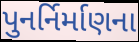
પુનર્નિર્માણના